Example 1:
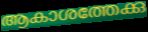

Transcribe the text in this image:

ആകാശത്തേക്കു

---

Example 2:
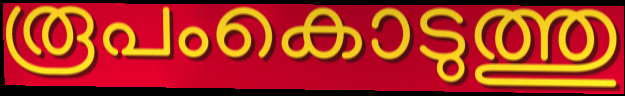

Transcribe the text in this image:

രൂപംകൊടുത്തു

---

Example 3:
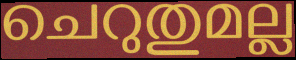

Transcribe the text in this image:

ചെറുതുമല്ല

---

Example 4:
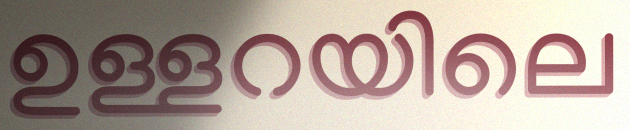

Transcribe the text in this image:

ഉള്ളറയിലെ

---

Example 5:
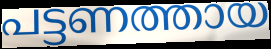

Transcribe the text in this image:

പട്ടണത്തായ